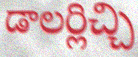
డాలర్లిచ్చి